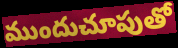
ముందుచూపుతో